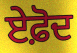
ਏਫ਼ੋਦ